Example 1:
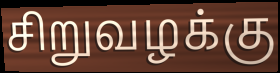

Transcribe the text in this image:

சிறுவழக்கு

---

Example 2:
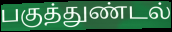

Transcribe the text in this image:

பகுத்துண்டல்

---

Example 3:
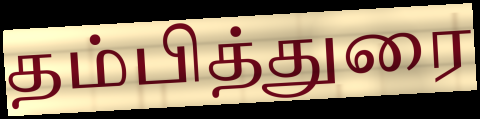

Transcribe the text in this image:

தம்பித்துரை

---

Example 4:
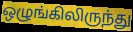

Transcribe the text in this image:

ஒழுங்கிலிருந்து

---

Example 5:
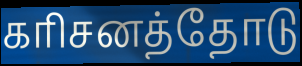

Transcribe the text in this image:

கரிசனத்தோடு